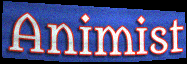
Animist